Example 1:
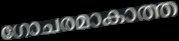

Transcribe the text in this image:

ഗോചരമാകാത്ത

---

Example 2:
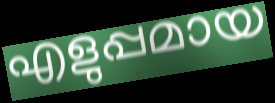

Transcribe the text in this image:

എളുപ്പമായ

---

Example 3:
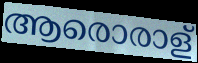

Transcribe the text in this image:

ആരൊരാള്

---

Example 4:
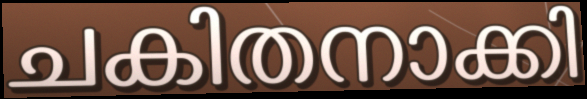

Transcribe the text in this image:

ചകിതനാക്കി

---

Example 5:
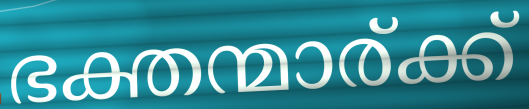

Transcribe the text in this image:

ഭക്തന്മാര്ക്ക്